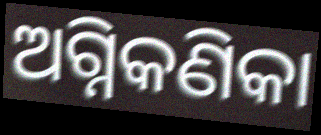
ଅଗ୍ନିକଣିକା